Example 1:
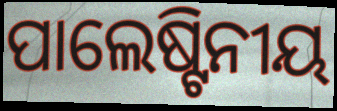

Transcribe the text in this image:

ପାଲେଷ୍ଟିନୀୟ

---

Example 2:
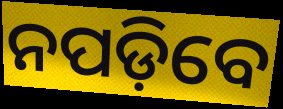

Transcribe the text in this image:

ନପଡ଼ିବେ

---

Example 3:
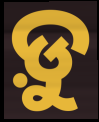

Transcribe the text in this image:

ଡ଼ୁ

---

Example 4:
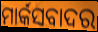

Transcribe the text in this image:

ମାର୍କସବାଦର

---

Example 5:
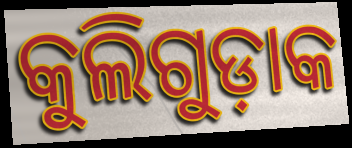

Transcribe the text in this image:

କୁଲିଗୁଡ଼ାକ